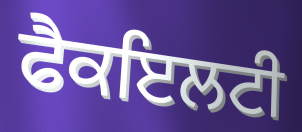
ਫੈਕਇਲਟੀ